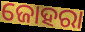
ଜୋହରା